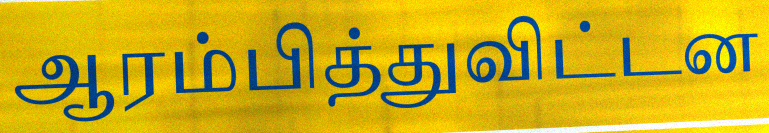
ஆரம்பித்துவிட்டன